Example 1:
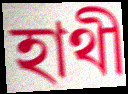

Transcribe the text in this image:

হাথী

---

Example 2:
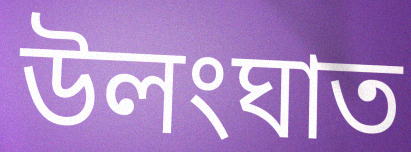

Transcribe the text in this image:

উলংঘাত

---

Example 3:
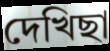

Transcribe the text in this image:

দেখিছা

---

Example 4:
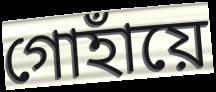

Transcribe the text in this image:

গোহাঁয়ে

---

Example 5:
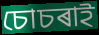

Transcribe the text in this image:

চোচৰাই